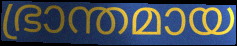
ഭ്രാന്തമായ